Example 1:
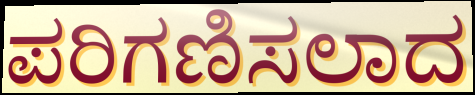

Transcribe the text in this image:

ಪರಿಗಣಿಸಲಾದ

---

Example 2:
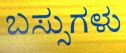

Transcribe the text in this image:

ಬಸ್ಸುಗಳು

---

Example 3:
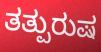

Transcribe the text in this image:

ತತ್ಪುರುಷ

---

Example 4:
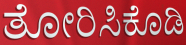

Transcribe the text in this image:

ತೋರಿಸಿಕೊಡಿ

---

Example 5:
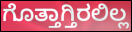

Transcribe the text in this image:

ಗೊತ್ತಾಗ್ತಿರಲಿಲ್ಲ